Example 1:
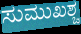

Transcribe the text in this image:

ಸುಮುಖಶ್ಚ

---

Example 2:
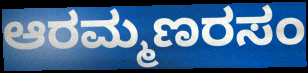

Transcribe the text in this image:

ಆರಮ್ಮಣರಸಂ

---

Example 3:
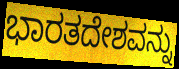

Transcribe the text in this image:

ಭಾರತದೇಶವನ್ನು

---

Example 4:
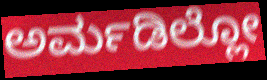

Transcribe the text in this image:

ಅರ್ಮಡಿಲ್ಲೋ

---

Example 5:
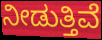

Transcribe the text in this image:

ನೀಡುತ್ತಿವೆ